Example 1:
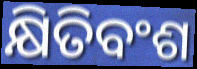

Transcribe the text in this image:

କ୍ଷିତିବଂଶ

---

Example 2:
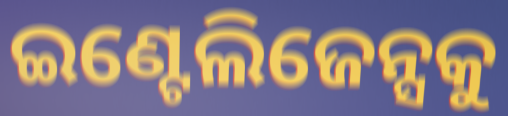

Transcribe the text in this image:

ଇଣ୍ଟେଲିଜେନ୍ସକୁ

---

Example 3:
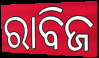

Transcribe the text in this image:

ରାବିଜ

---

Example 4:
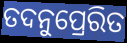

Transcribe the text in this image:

ତଦନୁପ୍ରେରିତ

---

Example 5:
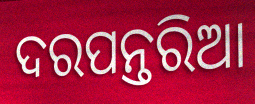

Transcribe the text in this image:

ଦରପନ୍ତରିଆ